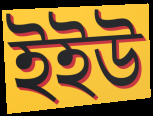
ইইউ